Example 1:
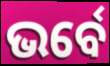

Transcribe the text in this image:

ଭର୍ବେ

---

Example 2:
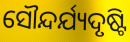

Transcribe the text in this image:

ସୌନ୍ଦର୍ଯ୍ୟଦୃଷ୍ଟି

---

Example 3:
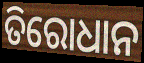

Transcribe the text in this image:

ତିରୋଧାନ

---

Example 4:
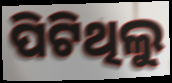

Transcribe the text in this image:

ପିଟିଥିଲୁ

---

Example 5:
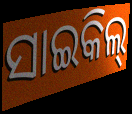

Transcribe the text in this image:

ସାଇକିଲ୍